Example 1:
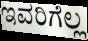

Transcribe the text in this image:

ಇವರಿಗೆಲ್ಲ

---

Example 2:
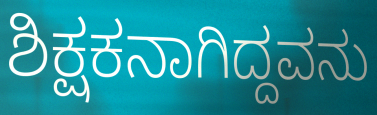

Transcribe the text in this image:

ಶಿಕ್ಷಕನಾಗಿದ್ದವನು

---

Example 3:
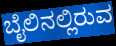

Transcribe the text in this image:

ಬೈಲಿನಲ್ಲಿರುವ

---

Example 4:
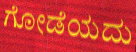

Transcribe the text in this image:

ಗೋಡೆಯದು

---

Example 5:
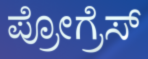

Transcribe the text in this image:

ಪ್ರೋಗ್ರೆಸ್